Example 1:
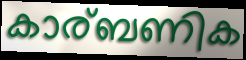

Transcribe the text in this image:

കാര്ബണിക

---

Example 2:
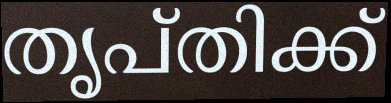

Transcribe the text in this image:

തൃപ്തിക്ക്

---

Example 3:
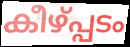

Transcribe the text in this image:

കീഴ്പ്പടം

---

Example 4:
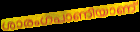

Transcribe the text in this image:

ശാരംഗപാണിയാണ്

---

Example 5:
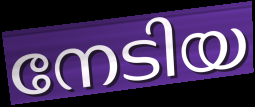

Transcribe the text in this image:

നേടിയ